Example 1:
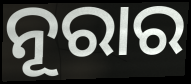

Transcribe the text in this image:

ନୂରାର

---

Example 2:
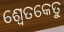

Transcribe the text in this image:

ଶ୍ୱେତକେତୁ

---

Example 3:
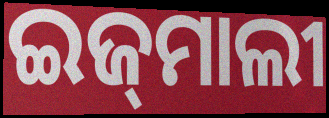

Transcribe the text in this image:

ଇଜ୍‌ମାଲୀ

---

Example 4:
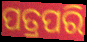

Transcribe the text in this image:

ପତ୍ରପରି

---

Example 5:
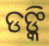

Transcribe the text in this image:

ଡଙ୍କି